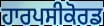
ਹਾਰਪਸੀਕੋਰਡ